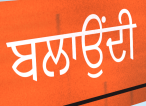
ਬਲਾਉਂਦੀ